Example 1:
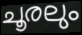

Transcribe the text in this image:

ചൂരലും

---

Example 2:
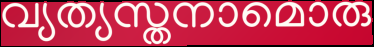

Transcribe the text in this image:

വ്യത്യസ്തനാമൊരു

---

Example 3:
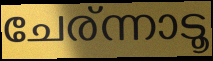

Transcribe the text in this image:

ചേര്ന്നാടൂ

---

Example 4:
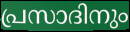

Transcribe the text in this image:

പ്രസാദിനും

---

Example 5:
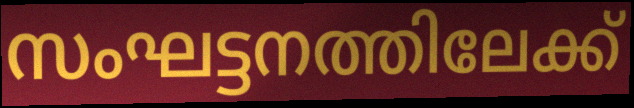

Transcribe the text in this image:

സംഘട്ടനത്തിലേക്ക്